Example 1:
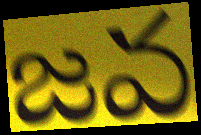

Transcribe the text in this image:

జవ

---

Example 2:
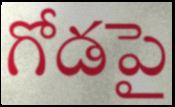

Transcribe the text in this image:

గోడపై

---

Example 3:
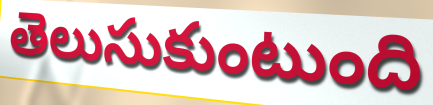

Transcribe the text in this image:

తెలుసుకుంటుంది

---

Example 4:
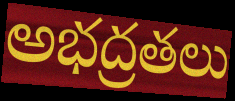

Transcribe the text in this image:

అభద్రతలు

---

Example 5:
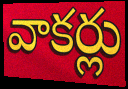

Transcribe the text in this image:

వాకర్లు